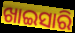
ଖାଇସାରି